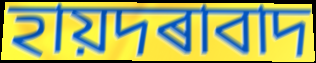
হায়দৰাবাদ